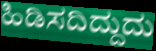
ಹಿಡಿಸದಿದ್ದುದು